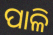
ପାଳି